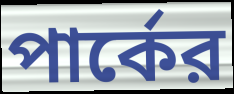
পার্কের